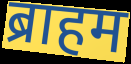
ब्राहम